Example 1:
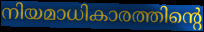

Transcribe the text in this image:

നിയമാധികാരത്തിന്റെ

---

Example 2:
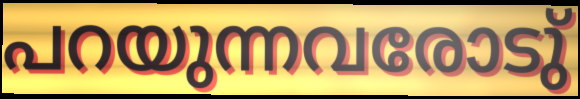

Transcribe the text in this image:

പറയുന്നവരോടു്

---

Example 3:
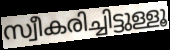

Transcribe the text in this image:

സ്വീകരിച്ചിട്ടുള്ളൂ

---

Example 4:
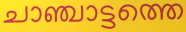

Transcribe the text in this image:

ചാഞ്ചാട്ടത്തെ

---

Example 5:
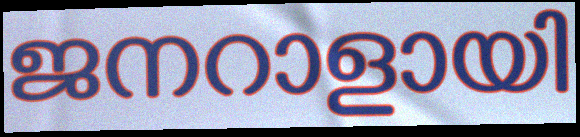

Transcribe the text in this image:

ജനറാളായി